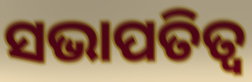
ସଭାପତିତ୍ଵ